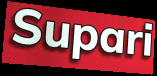
Supari